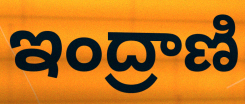
ఇంద్రాణి